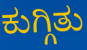
ಕುಗ್ಗಿತು